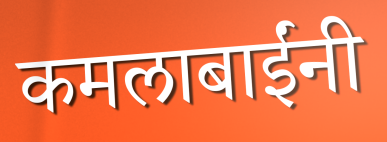
कमलाबाईंनी